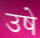
उषे